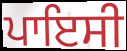
ਪਾਇਸੀ